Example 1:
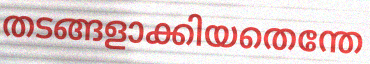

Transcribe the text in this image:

തടങ്ങളാക്കിയതെന്തേ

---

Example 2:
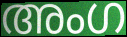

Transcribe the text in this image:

അംഗ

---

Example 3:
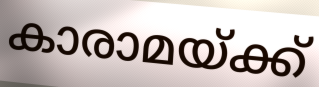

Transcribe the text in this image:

കാരാമയ്ക്ക്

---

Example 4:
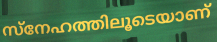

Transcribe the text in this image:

സ്നേഹത്തിലൂടെയാണ്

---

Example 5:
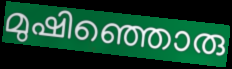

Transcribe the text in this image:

മുഷിഞ്ഞൊരു